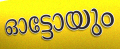
ഓട്ടോയും